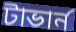
টাভার্ন